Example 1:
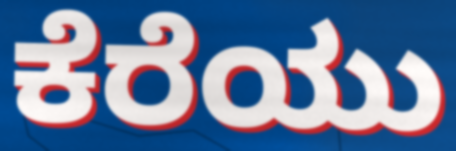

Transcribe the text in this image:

ಕೆರೆಯು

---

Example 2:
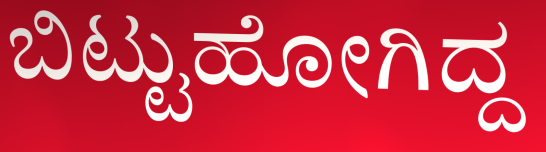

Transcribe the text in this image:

ಬಿಟ್ಟುಹೋಗಿದ್ದ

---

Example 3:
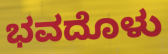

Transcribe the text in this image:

ಭವದೊಳು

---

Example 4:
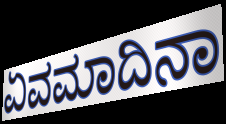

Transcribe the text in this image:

ಏವಮಾದಿನಾ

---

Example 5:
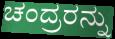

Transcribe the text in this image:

ಚಂದ್ರರನ್ನು